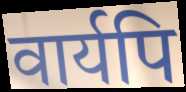
वार्यपि